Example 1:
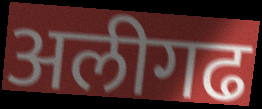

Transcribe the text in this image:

अलीगढ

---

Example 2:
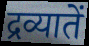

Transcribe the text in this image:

द्रव्यातें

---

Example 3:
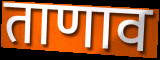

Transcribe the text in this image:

ताणाव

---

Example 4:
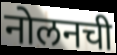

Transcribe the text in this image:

नोलनची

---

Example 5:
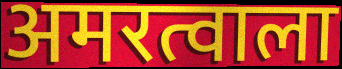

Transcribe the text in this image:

अमरत्वाला